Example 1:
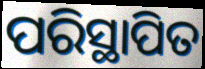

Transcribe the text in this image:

ପରିସ୍ଥାପିତ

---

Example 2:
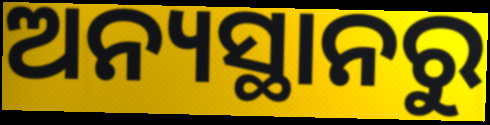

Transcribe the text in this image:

ଅନ୍ୟସ୍ଥାନରୁ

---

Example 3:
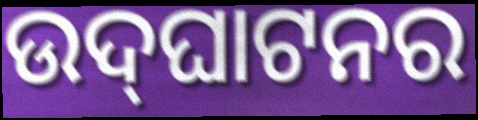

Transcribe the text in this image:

ଉଦ୍‍ଘାଟନର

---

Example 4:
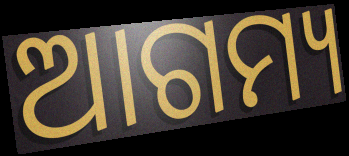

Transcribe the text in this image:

ଆଗମ୍ୟ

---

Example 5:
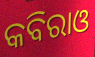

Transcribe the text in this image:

କବିରାଓ